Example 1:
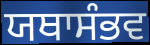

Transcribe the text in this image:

ਯਥਾਸੰਭਵ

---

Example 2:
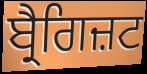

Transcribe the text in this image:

ਬ੍ਰੈਗਿਜ਼ਟ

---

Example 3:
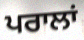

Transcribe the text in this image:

ਪਰਾਲਾਂ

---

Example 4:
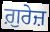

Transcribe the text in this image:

ਗ਼ੁਰੇਜ਼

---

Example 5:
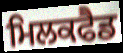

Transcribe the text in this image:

ਮਿਲਕਫੈਡ